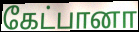
கேட்பானா